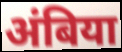
अंबिया